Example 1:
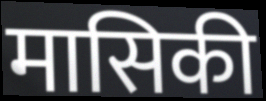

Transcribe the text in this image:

मासिकी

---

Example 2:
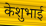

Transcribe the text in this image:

केशुभाई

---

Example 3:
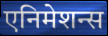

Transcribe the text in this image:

एनिमेशन्स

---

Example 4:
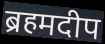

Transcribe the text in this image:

ब्रहमदीप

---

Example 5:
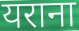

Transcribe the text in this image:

यराना